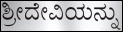
ಶ್ರೀದೇವಿಯನ್ನು